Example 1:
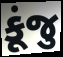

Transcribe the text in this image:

કૂંજુ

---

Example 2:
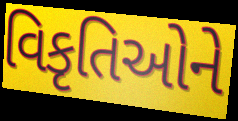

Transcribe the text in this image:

વિકૃતિઓને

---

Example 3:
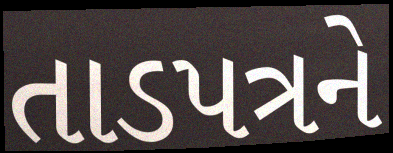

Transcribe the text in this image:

તાડપત્રને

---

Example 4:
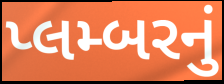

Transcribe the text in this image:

પ્લમ્બરનું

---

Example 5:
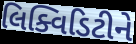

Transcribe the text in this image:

લિક્વિડિટીને